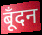
बूँदन